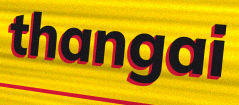
thangai